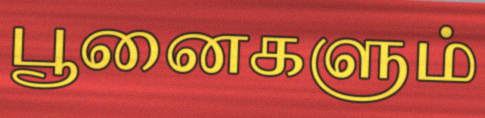
பூனைகளும்